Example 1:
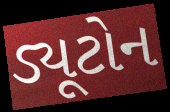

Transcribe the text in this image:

ડ્યૂટોન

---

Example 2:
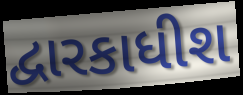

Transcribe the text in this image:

દ્વારકાધીશ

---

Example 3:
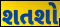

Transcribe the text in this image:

શતશો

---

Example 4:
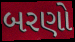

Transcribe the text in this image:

બરણો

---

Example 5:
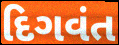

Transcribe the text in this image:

દિગવંત